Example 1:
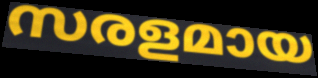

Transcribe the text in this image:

സരളമായ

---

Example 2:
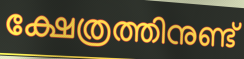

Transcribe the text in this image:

ക്ഷേത്രത്തിനുണ്ട്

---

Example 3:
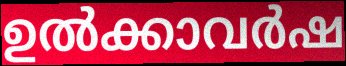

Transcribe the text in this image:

ഉൽക്കാവർഷ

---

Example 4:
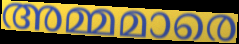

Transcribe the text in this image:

അമ്മമാരെ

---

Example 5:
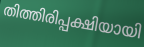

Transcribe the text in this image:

തിത്തിരിപ്പക്ഷിയായി